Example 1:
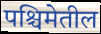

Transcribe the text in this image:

पश्चिमेतील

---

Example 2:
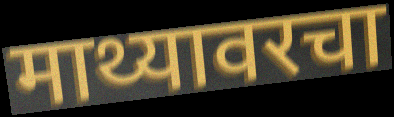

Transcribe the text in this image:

माथ्यावरचा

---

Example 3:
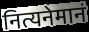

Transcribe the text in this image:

नित्यनेमानं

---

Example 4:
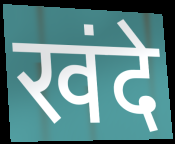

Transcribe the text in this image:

खंदे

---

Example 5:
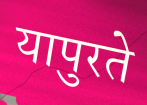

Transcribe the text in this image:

यापुरते